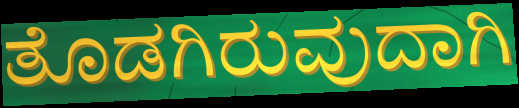
ತೊಡಗಿರುವುದಾಗಿ